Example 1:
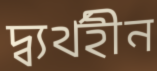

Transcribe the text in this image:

দ্ব্যর্থহীন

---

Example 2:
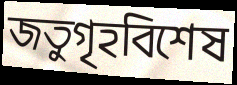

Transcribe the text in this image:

জতুগৃহবিশেষ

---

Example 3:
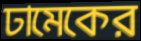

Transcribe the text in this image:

ঢামেকের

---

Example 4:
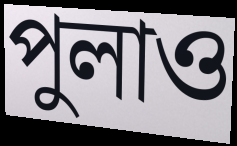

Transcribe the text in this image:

পুলাও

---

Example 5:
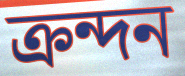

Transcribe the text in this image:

ক্রন্দন